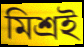
মিশ্ৰই